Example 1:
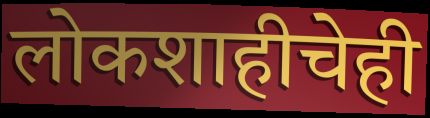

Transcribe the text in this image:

लोकशाहीचेही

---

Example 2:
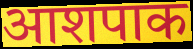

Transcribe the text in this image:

आशपाक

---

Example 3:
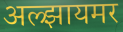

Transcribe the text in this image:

अल्झायमर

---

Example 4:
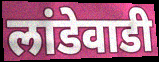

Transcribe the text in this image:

लांडेवाडी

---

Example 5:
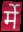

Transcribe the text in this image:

र्मे